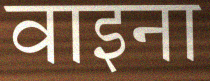
वाइना